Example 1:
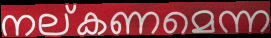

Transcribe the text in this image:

നല്കണമെന്ന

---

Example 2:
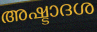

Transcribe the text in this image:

അഷ്ടാദശ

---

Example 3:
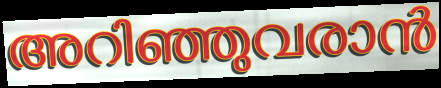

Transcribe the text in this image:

അറിഞ്ഞുവരാൻ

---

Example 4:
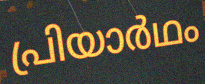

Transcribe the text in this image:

പ്രിയാർഥം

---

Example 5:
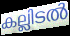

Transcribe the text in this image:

കല്ലിടൽ